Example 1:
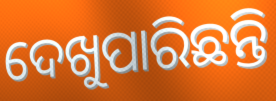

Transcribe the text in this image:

ଦେଖୁପାରିଛନ୍ତି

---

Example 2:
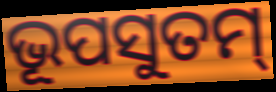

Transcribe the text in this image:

ଭୂପସୁତମ୍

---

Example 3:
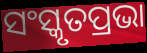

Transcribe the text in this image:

ସଂସ୍କୃତପ୍ରଭା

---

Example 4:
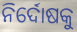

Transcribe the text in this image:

ନିର୍ଦୋଷକୁ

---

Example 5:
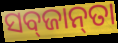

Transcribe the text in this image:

ସବ୍‌ଜାନ୍‌ତା